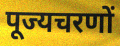
पूज्यचरणों